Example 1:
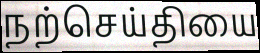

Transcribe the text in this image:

நற்செய்தியை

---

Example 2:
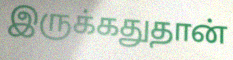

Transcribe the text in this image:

இருக்கதுதான்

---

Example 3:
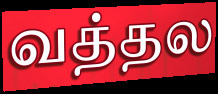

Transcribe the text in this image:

வத்தல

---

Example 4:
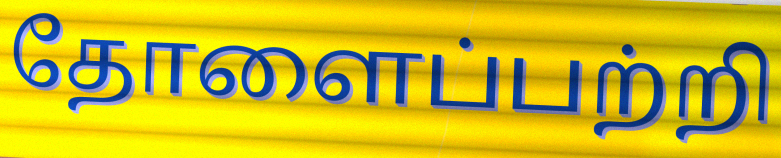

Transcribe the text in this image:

தோளைப்பற்றி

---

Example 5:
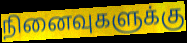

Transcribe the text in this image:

நினைவுகளுக்கு